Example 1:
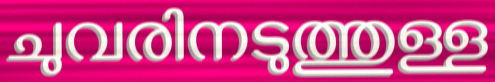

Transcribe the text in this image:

ചുവരിനടുത്തുള്ള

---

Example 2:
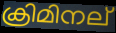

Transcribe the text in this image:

ക്രിമിനല്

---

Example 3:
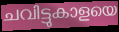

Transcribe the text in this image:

ചവിട്ടുകാളയെ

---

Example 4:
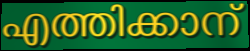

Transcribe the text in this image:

എത്തിക്കാന്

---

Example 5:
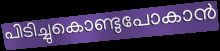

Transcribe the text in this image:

പിടിച്ചുകൊണ്ടുപോകാൻ